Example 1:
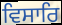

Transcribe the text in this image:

ਵਿਸਾਰਿ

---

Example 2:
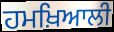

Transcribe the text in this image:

ਹਮਖ਼ਿਆਲੀ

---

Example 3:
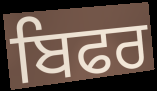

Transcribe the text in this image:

ਬਿਫਰ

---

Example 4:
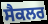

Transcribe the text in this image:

ਸੈਕਲਰ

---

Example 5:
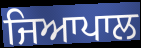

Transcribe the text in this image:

ਜਿਆਪਾਲ